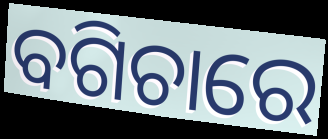
ବଗିଚାରେ